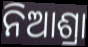
ନିଆଶ୍ରା